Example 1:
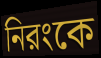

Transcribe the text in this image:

নিরংকে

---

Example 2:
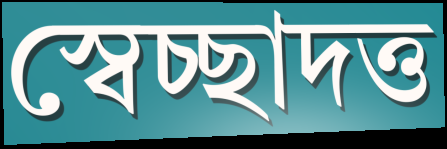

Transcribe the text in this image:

স্বেচ্ছাদত্ত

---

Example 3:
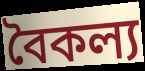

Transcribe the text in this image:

বৈকল্য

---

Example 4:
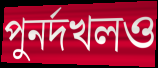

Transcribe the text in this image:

পুনর্দখলও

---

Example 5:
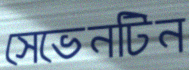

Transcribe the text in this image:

সেভেনটিন